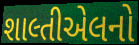
શાલ્તીએલનો